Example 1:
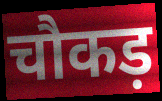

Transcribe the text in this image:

चौकड़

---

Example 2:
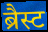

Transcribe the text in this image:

ब्रैस्ट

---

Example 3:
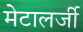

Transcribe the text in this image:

मेटालर्जी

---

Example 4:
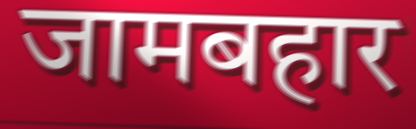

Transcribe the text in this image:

जामबहार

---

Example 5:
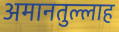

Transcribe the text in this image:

अमानतुल्लाह